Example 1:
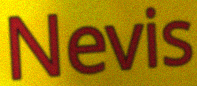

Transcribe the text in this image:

Nevis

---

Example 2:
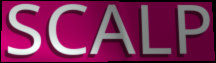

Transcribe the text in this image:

SCALP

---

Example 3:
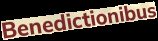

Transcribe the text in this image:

Benedictionibus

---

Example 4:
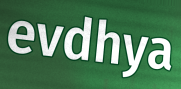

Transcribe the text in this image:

evdhya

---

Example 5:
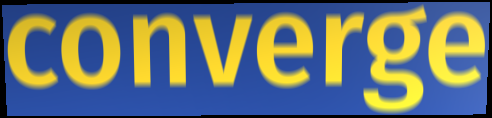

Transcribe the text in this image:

converge